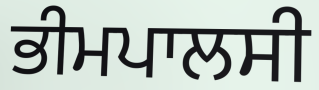
ਭੀਮਪਾਲਸੀ